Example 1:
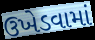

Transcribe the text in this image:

ઉખેડવામાં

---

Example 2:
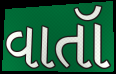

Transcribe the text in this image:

વાતૉ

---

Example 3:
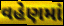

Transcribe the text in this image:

વહેણમાં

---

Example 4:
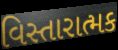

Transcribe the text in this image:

વિસ્તારાત્મક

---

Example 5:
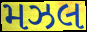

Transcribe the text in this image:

મઝલ